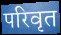
परिवृत